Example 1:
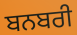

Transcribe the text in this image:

ਬਨਬਰੀ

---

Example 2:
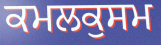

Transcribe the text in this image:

ਕਮਲਕੁਸਮ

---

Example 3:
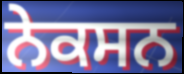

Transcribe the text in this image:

ਨੇਕਸਨ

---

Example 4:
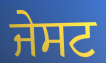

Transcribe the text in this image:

ਜੇਸਟ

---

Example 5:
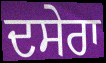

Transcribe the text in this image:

ਦਸੇਰਾ